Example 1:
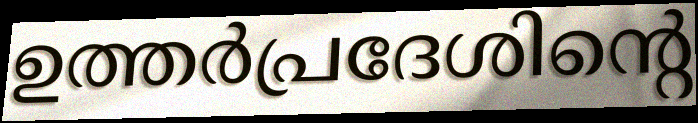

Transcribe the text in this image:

ഉത്തർപ്രദേശിന്റെ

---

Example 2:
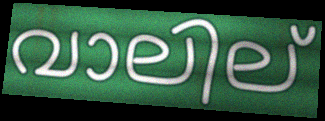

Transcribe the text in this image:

വാലില്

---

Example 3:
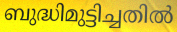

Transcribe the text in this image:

ബുദ്ധിമുട്ടിച്ചതിൽ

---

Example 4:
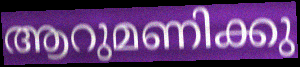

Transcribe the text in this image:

ആറുമണിക്കു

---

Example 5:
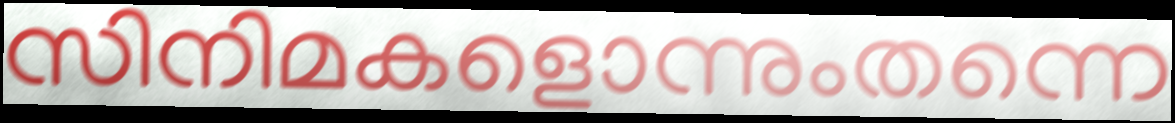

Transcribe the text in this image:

സിനിമകളൊന്നുംതന്നെ